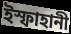
ইস্ফাহানী